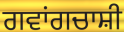
ਗਵਾਂਗਚਾਸ਼ੀ